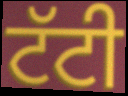
ਟੱਟੀ